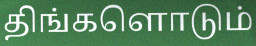
திங்களொடும்